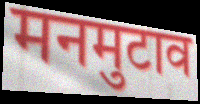
मनमुटाव